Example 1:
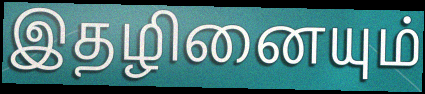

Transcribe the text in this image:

இதழினையும்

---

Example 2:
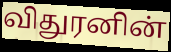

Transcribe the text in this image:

விதுரனின்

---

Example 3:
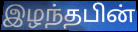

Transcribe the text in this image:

இழந்தபின்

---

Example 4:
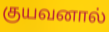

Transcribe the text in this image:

குயவனால்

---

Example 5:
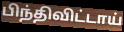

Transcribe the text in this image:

பிந்திவிட்டாய்